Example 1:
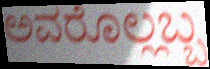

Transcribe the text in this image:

ಅವರೊಲ್ಲಬ್ಬ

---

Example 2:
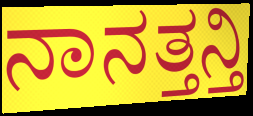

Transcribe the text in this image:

ನಾನತ್ತನ್ತಿ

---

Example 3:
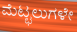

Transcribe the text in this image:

ಮೆಟ್ಟಲುಗಳೇ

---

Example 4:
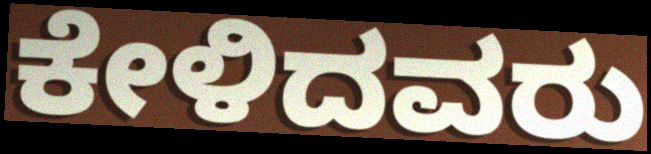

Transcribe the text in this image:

ಕೇಳಿದವರು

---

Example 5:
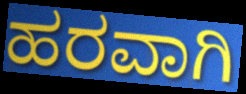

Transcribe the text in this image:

ಹರವಾಗಿ